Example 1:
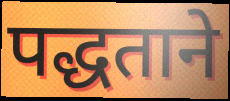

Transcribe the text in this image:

पद्धताने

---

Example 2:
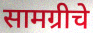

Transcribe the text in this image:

सामग्रीचे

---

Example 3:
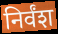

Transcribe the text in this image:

निर्वंश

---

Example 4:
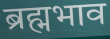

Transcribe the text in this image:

ब्रह्मभाव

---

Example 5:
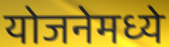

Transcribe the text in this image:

योजनेमध्ये